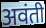
अवंती